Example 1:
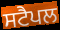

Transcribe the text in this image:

ਸਟੈਪਲ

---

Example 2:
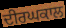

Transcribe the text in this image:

ਦੀਰਘਕਾਲ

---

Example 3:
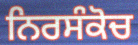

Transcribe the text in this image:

ਨਿਰਸੰਕੋਚ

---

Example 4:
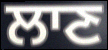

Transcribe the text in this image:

ਲਾਣ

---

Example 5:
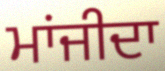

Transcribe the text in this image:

ਮਾਂਜੀਦਾ